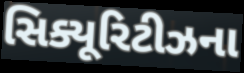
સિક્યૂરિટીઝના